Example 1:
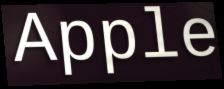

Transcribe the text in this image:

Apple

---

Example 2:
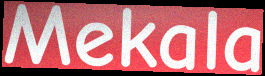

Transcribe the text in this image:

Mekala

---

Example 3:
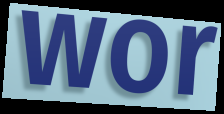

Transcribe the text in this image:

wor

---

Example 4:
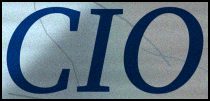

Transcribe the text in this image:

CIO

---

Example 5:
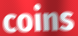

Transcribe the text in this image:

coins